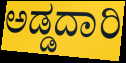
ಅಡ್ಡದಾರಿ